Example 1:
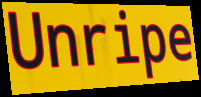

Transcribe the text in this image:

Unripe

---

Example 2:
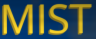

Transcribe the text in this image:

MIST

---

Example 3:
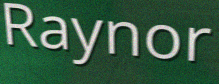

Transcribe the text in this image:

Raynor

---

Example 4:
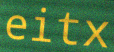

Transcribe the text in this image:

eitx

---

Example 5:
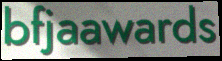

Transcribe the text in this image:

bfjaawards